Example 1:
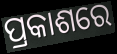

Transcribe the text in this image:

ପ୍ରକାଶରେ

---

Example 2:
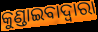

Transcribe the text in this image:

କୁଣ୍ଡାଇବାଦ୍ୱାରା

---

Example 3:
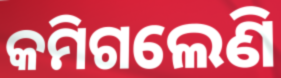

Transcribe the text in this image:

କମିଗଲେଣି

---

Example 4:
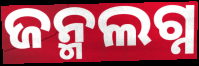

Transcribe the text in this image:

ଜନ୍ମଲଗ୍ନ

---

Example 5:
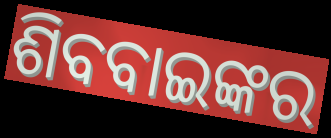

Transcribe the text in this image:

ଶିବବାଇଙ୍କର